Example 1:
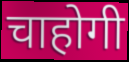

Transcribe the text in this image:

चाहोगी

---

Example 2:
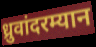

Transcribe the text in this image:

ध्रुवांदरम्यान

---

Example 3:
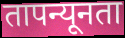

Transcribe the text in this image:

तापन्यूनता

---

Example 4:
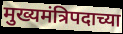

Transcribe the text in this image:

मुख्यमंत्रिपदाच्या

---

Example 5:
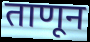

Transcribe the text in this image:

ताणून